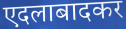
एदलाबादकर